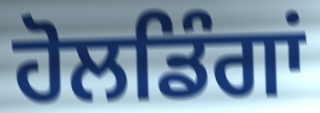
ਹੋਲਡਿੰਗਾਂ